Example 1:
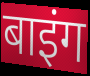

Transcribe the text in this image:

बाइंग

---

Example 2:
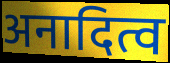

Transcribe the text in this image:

अनादित्व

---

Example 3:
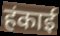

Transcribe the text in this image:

हंकाई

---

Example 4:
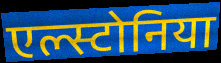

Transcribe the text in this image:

एल्स्टोनिया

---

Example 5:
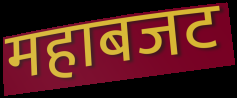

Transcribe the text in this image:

महाबजट